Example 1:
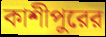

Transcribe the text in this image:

কাশীপুরের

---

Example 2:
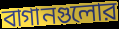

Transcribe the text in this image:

বাগানগুলোর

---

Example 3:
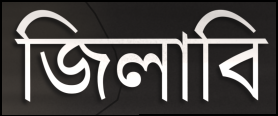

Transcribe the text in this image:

জিলাবি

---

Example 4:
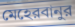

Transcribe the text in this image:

মেহেরবানুর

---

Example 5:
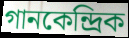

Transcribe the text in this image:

গানকেন্দ্রিক